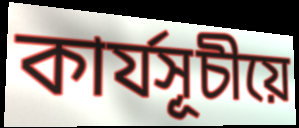
কাৰ্যসূচীয়ে